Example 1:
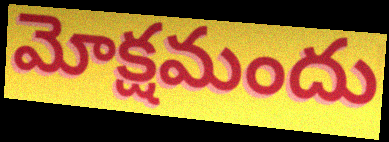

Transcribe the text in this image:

మోక్షమందు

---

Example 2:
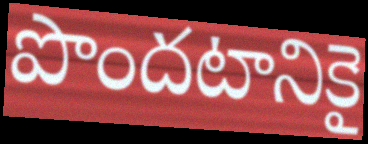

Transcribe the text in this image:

పొందటానికై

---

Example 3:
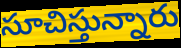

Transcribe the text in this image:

సూచిస్తున్నారు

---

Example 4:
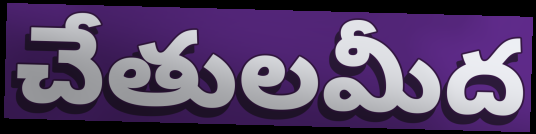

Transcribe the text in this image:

చేతులమీద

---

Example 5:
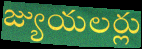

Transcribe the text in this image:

జ్యుయలర్లు